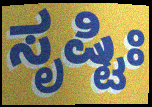
ಸೃಷ್ಟಿಃ